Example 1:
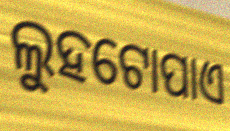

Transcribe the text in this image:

ଲୁହଟୋପାଏ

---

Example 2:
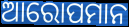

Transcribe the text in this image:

ଆରୋପମାନ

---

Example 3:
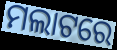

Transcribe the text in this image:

ମଲାଟରେ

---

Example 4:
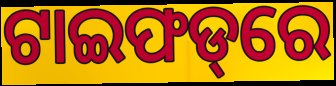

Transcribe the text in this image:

ଟାଇଫଡ୍‌ରେ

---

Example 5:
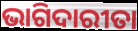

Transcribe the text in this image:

ଭାଗିଦାରୀତା